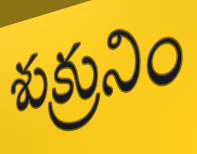
శుక్రునిం